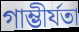
গাম্ভীর্যতা